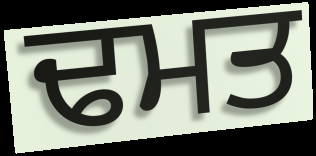
ਢਮਤ